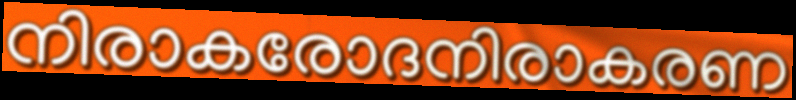
നിരാകരോദനിരാകരണ